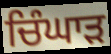
ਚਿੰਘਾੜ